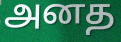
அனத